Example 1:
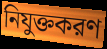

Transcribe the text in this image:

নিযুক্তকরণ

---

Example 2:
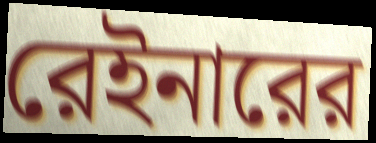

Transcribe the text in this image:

রেইনারের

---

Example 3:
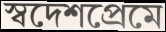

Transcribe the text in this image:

স্বদেশপ্রেমে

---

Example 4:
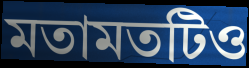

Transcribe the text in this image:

মতামতটিও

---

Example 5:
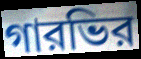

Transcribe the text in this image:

গারভির